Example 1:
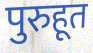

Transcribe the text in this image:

पुरुहूत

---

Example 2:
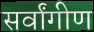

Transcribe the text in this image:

सर्वांगीण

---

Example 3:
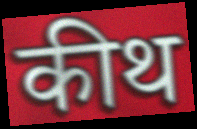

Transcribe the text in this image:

कीथ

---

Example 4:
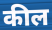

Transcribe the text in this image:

कील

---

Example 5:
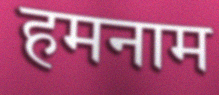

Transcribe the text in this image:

हमनाम